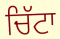
ਚਿੱਟਾ